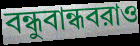
বন্ধুবান্ধবরাও